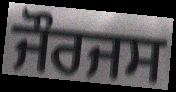
ਜੌਰਜਸ